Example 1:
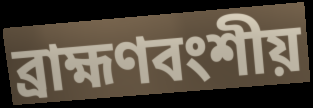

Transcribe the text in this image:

ব্রাহ্মণবংশীয়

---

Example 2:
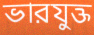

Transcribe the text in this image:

ভারযুক্ত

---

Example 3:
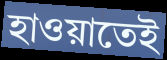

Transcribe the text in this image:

হাওয়াতেই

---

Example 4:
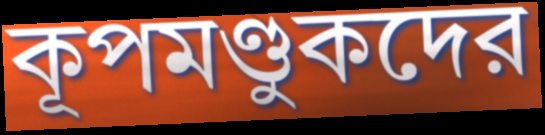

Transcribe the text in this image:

কূপমণ্ডুকদের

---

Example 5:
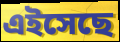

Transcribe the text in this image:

এইসেছে